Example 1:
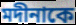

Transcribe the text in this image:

মদীনাকে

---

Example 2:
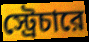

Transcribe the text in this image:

স্ট্রেচারে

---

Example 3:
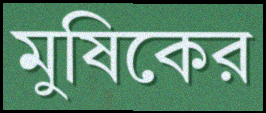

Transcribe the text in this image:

মুষিকের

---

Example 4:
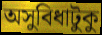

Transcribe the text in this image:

অসুবিধাটুকু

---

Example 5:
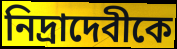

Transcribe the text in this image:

নিদ্রাদেবীকে